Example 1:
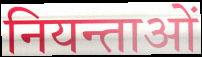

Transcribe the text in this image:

नियन्ताओं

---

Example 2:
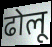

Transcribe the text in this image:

ढोलू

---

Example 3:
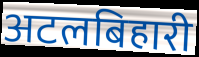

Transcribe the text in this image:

अटलबिहारी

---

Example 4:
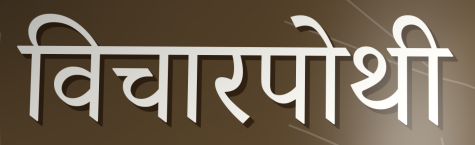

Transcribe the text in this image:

विचारपोथी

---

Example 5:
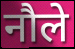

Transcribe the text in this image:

नौले